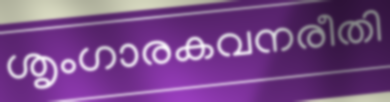
ശൃംഗാരകവനരീതി